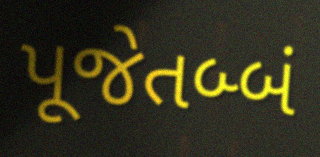
પૂજેતબ્બં